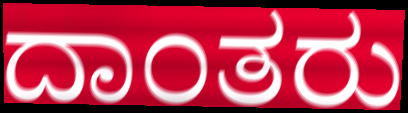
ದಾಂತರು